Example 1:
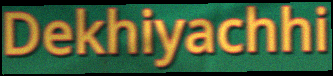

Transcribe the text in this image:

Dekhiyachhi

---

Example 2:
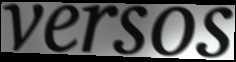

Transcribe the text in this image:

versos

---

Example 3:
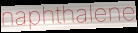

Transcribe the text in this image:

naphthalene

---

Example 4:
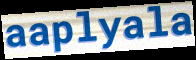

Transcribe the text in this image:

aaplyala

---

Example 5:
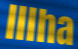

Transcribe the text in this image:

Illha